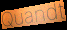
Quandt